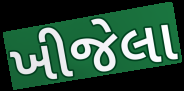
ખીજેલા